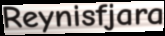
Reynisfjara